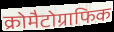
क्रोमैटोग्राफिक